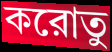
করোতু